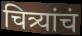
चित्र्यांचं